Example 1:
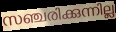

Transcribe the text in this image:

സഞ്ചരിക്കുന്നില്ല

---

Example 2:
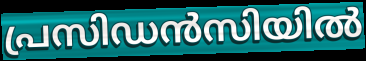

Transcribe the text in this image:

പ്രസിഡൻസിയിൽ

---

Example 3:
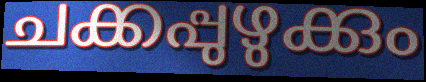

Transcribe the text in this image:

ചക്കപ്പുഴുക്കും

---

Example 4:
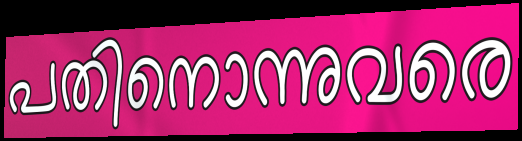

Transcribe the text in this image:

പതിനൊന്നുവരെ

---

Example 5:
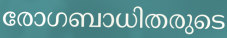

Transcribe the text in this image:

രോഗബാധിതരുടെ